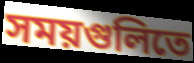
সময়গুলিতে